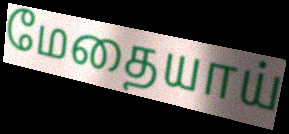
மேதையாய்